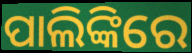
ପାଲିଙ୍କିରେ